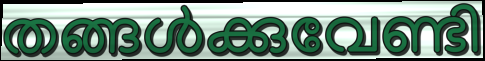
തങ്ങൾക്കുവേണ്ടി